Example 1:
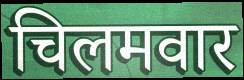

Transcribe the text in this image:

चिलमवार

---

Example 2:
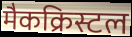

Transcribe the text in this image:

मैकक्रिस्टल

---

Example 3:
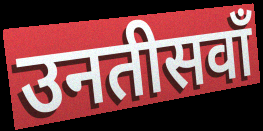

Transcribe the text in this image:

उनतीसवाँ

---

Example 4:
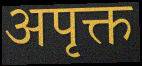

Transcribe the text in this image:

अपृक्त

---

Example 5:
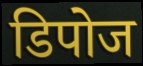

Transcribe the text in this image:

डिपोज